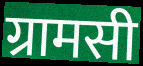
ग्रामसी